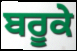
ਬਰੂਕੇ